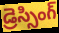
డ్రెస్సింగ్